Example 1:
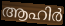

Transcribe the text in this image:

ആഹിർ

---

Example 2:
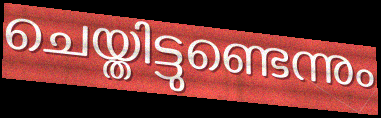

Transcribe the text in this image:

ചെയ്തിട്ടുണ്ടെന്നും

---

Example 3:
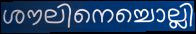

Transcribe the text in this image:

ശൗലിനെച്ചൊല്ലി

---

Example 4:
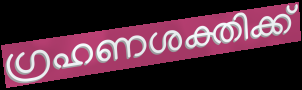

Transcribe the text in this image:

ഗ്രഹണശക്തിക്ക്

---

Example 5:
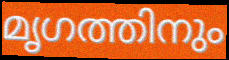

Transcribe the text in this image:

മൃഗത്തിനും